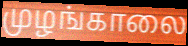
முழங்காலை